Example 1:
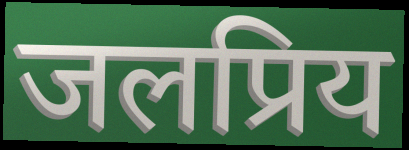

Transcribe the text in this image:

जलप्रिय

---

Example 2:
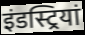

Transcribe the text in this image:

इंडस्ट्रियां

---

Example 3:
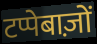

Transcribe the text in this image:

टप्पेबाज़ों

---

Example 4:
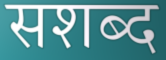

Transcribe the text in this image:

सशब्द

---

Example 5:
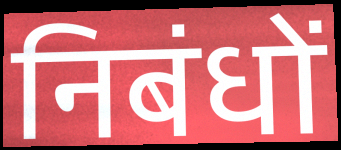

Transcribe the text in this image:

निबंधों